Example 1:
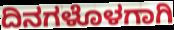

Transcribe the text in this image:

ದಿನಗಳೊಳಗಾಗಿ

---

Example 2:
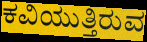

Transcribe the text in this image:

ಕವಿಯುತ್ತಿರುವ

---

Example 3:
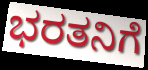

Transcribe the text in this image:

ಭರತನಿಗೆ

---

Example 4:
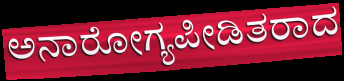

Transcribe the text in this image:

ಅನಾರೋಗ್ಯಪೀಡಿತರಾದ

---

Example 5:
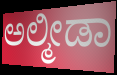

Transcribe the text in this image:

ಅಲ್ಮೀಡಾ